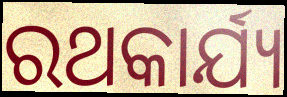
ରଥକାର୍ଯ୍ୟ